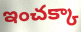
ఇంచక్కా